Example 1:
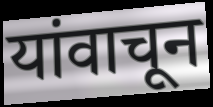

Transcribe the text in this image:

यांवाचून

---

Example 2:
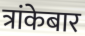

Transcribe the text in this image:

त्रांकेबार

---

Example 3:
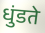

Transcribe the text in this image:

धुंडते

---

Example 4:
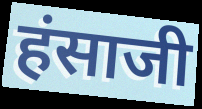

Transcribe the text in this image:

हंसाजी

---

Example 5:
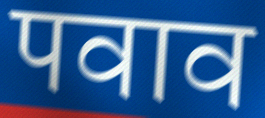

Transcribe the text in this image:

पवाव